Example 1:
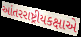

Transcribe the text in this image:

આંતરરાષ્ટ્રીયકક્ષાએ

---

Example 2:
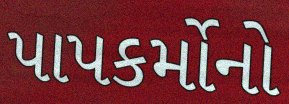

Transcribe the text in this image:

પાપકર્મોનો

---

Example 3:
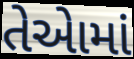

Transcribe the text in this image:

તેએામાં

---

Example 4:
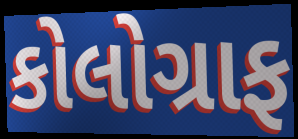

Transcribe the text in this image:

કોલોગ્રાફ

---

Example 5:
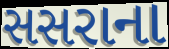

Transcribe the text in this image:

સસરાના